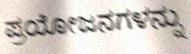
ಪ್ರಯೋಜನಗಳನ್ನು